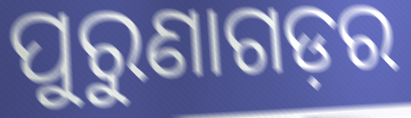
ପୁରୁଣାଗଡ଼ର